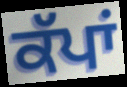
ਕੱਪਾਂ